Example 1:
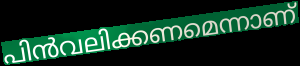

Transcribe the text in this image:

പിൻവലിക്കണമെന്നാണ്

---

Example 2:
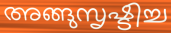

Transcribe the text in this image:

അങ്ങുസൃഷ്ടിച്ച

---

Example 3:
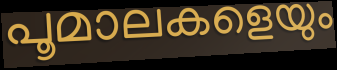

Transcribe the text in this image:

പൂമാലകളെയും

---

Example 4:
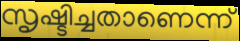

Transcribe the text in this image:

സൃഷ്ടിച്ചതാണെന്ന്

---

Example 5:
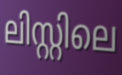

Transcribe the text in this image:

ലിസ്റ്റിലെ